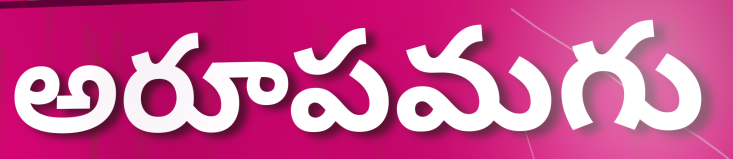
అరూపమగు